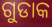
ଗୁଡାକ